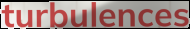
turbulences